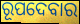
ରୂପଦେବାର